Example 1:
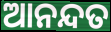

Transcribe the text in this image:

ଆନନ୍ଦତ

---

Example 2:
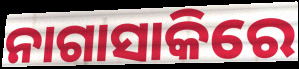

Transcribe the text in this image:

ନାଗାସାକିରେ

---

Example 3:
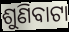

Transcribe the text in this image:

ଶୁଣିବାଟା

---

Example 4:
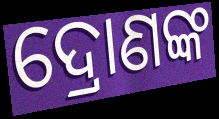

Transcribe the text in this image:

ଦ୍ରୋଣଙ୍କ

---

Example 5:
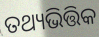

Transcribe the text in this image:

ତଥ୍ୟଭିତ୍ତିକ